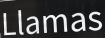
Llamas